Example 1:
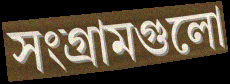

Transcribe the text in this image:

সংগ্রামগুলো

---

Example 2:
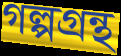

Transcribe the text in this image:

গল্পগ্রন্থ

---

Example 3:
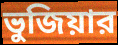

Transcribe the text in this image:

ভুজিয়ার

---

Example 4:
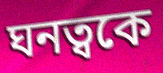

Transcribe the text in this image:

ঘনত্বকে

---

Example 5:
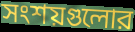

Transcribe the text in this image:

সংশয়গুলোর